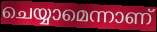
ചെയ്യാമെന്നാണ്